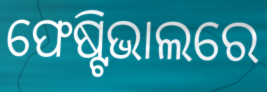
ଫେଷ୍ଟିଭାଲରେ